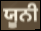
ਯੂਨੀ